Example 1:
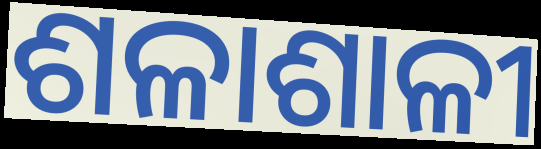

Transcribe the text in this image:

ଶଳାଶାଳୀ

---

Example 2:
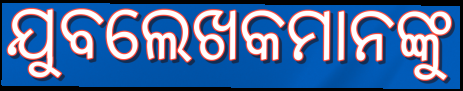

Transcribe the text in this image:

ଯୁବଲେଖକମାନଙ୍କୁ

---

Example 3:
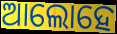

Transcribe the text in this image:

ଆଲୋହେ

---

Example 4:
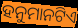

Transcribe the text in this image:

ହନୁମାନଟିଏ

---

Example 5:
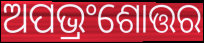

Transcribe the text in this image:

ଅପଭ୍ରଂଶୋତ୍ତର